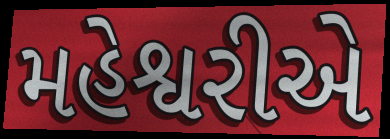
મહેશ્વરીએ